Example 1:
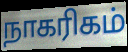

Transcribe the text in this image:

நாகரிகம்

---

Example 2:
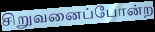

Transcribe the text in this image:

சிறுவனைப்போன்ற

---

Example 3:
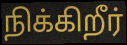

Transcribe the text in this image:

நிக்கிறீர்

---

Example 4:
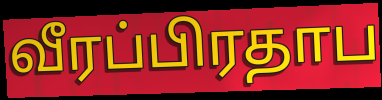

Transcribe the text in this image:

வீரப்பிரதாப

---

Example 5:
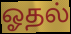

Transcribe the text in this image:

ஓதல்